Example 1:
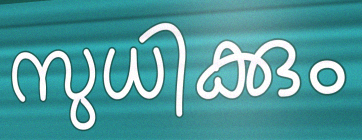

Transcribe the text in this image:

സുധിക്കും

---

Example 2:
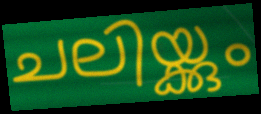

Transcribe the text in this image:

ചലിയ്ക്കും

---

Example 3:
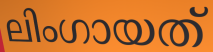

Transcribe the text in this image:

ലിംഗായത്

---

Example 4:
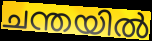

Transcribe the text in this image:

ചന്തയിൽ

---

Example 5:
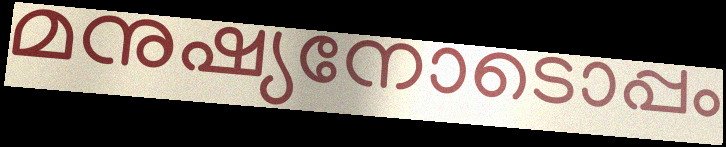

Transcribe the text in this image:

മനുഷ്യനോടൊപ്പം